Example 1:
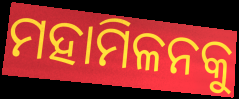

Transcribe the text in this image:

ମହାମିଳନକୁ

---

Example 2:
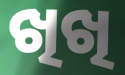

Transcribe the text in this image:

ଖିଖି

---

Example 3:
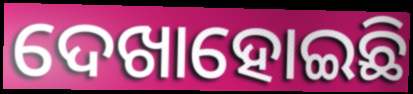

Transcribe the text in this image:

ଦେଖାହୋଇଛି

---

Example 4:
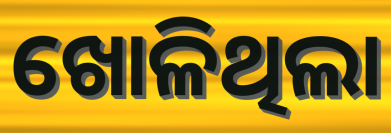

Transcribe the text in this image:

ଖୋଳିଥିଲା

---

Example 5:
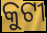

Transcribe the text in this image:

କୁଟୀ